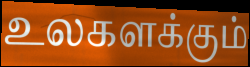
உலகளக்கும்